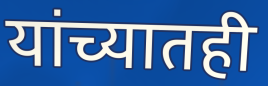
यांच्यातही